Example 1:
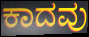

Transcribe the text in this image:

ಕಾದವು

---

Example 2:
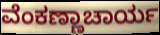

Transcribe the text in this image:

ವೆಂಕಣ್ಣಾಚಾರ್ಯ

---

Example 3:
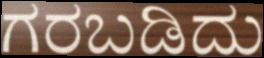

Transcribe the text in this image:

ಗರಬಡಿದು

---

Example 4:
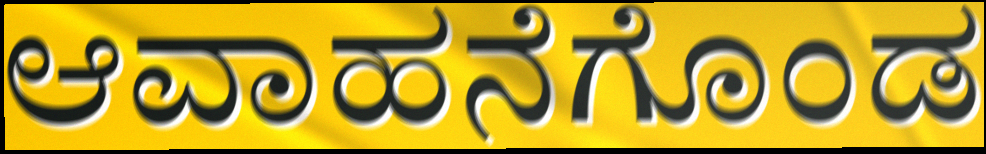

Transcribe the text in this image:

ಆವಾಹನೆಗೊಂಡ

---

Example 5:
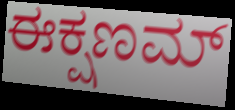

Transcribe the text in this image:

ಈಕ್ಷಣಮ್